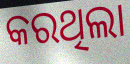
କରଥିଲା